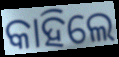
କାହିଲେ